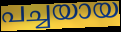
പച്ചയായ